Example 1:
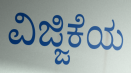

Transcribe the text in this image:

ವಿಜ್ಜಿಕೆಯ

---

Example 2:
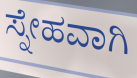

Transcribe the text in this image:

ಸ್ನೇಹವಾಗಿ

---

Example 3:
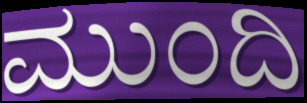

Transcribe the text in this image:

ಮುಂದಿ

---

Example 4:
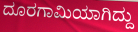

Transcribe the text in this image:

ದೂರಗಾಮಿಯಾಗಿದ್ದು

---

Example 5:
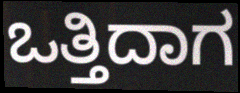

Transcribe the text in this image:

ಒತ್ತಿದಾಗ